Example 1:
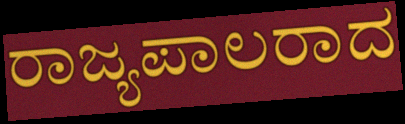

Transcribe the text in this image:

ರಾಜ್ಯಪಾಲರಾದ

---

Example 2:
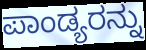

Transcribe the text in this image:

ಪಾಂಡ್ಯರನ್ನು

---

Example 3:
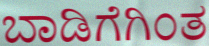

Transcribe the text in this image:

ಬಾಡಿಗೆಗಿಂತ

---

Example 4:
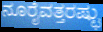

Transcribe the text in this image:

ನೂರೈವತ್ತರಷ್ಟು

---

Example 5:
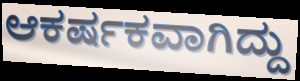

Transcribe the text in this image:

ಆಕರ್ಷಕವಾಗಿದ್ದು